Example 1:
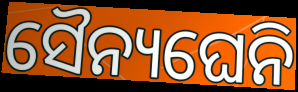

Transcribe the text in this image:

ସୈନ୍ୟଘେନି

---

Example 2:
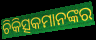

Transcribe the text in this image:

ଚିକିତ୍ସକମାନଙ୍କର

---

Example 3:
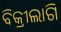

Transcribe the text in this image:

ବିକ୍ରୀଲାଗି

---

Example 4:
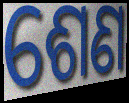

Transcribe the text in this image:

ଶେଣ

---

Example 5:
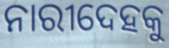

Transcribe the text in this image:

ନାରୀଦେହକୁ